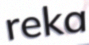
reka